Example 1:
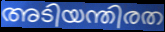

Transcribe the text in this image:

അടിയന്തിരത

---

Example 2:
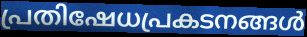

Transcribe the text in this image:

പ്രതിഷേധപ്രകടനങ്ങൾ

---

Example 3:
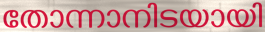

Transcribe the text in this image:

തോന്നാനിടയായി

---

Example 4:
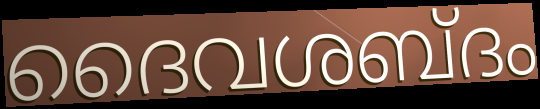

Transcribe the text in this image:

ദൈവശബ്ദം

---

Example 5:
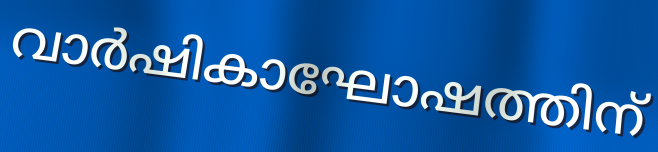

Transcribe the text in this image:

വാർഷികാഘോഷത്തിന്